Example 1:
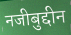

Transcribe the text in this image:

नजीबुद्दीन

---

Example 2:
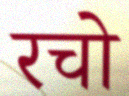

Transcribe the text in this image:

रचो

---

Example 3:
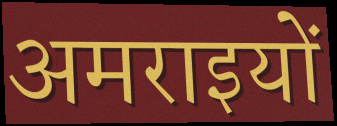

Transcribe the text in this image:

अमराइयों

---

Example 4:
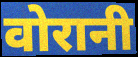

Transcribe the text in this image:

वोरानी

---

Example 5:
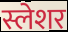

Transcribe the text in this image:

स्लेशर